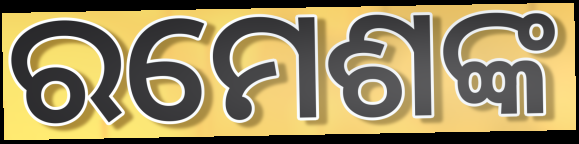
ରମେଶଙ୍କ